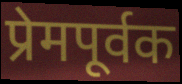
प्रेमपूर्वक